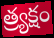
త్ర్యక్షం